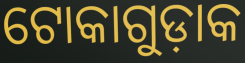
ଟୋକାଗୁଡ଼ାକ